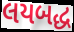
લયબદ્ધ